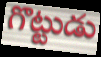
గొట్టుడు